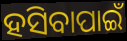
ହସିବାପାଇଁ